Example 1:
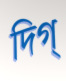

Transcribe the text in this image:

দিগ্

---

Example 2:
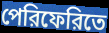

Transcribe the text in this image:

পেরিফেরিতে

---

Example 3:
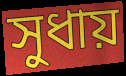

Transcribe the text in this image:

সুধায়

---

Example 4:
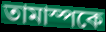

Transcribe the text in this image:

তামাস্পকে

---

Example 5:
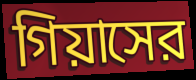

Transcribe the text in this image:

গিয়াসের